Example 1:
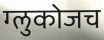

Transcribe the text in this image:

ग्लुकोजच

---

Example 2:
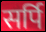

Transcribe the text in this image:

सर्पि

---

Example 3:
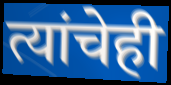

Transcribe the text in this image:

त्यांचेही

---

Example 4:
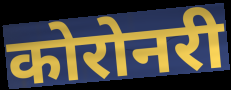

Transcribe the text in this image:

कोरोनरी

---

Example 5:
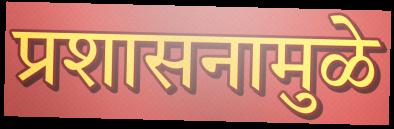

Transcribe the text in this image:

प्रशासनामुळे